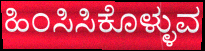
ಹಿಂಸಿಸಿಕೊಳ್ಳುವ